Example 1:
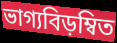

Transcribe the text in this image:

ভাগ্যবিড়ম্বিত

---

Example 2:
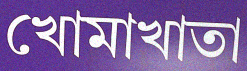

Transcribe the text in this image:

খোমাখাতা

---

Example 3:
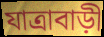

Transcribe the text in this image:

যাত্রাবাড়ী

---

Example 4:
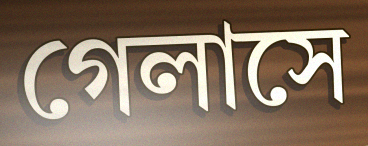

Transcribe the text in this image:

গেলাসে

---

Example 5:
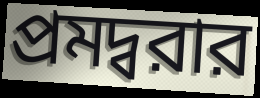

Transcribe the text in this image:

প্রমদ্বরার